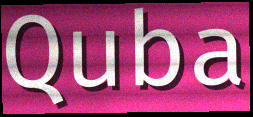
Quba